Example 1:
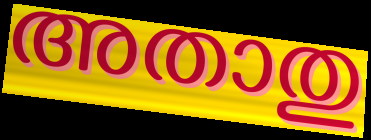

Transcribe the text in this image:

അതാതു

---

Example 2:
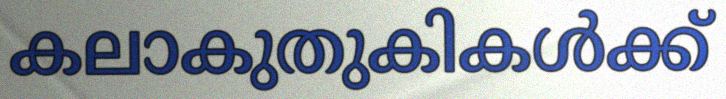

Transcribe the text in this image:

കലാകുതുകികൾക്ക്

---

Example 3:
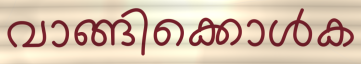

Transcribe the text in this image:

വാങ്ങിക്കൊൾക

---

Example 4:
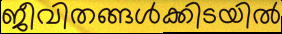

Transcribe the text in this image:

ജീവിതങ്ങൾക്കിടയിൽ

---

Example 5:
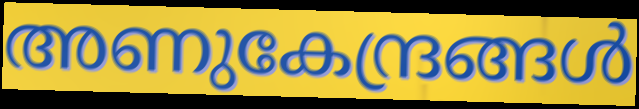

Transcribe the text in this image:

അണുകേന്ദ്രങ്ങൾ